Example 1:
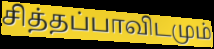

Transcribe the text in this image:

சித்தப்பாவிடமும்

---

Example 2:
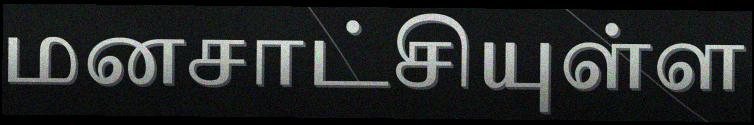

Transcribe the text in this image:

மனசாட்சியுள்ள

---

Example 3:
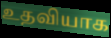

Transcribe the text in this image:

உதவியாக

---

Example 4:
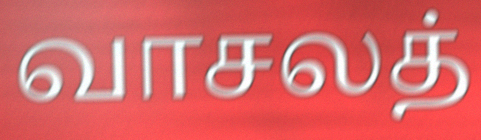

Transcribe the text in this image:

வாசலத்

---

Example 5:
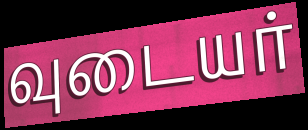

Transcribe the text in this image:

வுடையர்